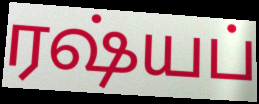
ரஷ்யப்